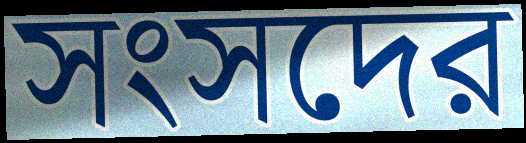
সংসদের